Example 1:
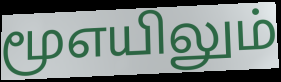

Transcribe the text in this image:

மூஎயிலும்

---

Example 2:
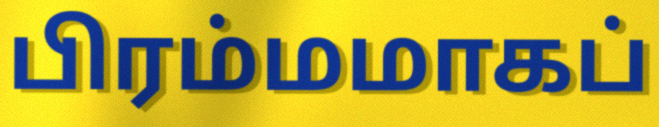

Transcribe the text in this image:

பிரம்மமாகப்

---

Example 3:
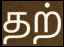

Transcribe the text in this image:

தற்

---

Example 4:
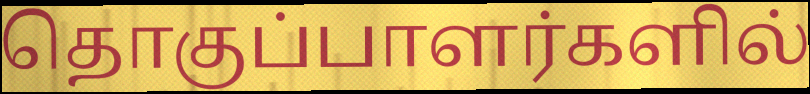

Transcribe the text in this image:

தொகுப்பாளர்களில்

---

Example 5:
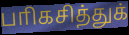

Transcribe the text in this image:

பரிகசித்துக்